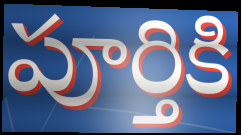
పూర్తికి